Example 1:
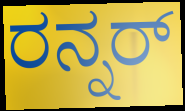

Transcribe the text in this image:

ರನ್ನರ್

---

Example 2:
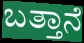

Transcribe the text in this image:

ಬತ್ತಾನೆ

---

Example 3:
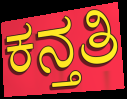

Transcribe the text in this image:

ಕನ್ತತಿ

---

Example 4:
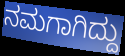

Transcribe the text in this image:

ನಮಗಾಗಿದ್ದು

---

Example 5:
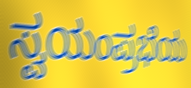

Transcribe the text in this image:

ಸ್ವಯಂಪ್ರಭೆಯ